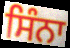
ਸਿੰਨਾ